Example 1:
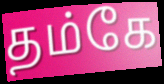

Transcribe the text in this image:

தம்கே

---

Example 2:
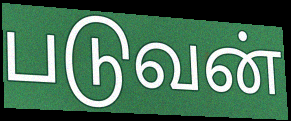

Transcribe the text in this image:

படுவன்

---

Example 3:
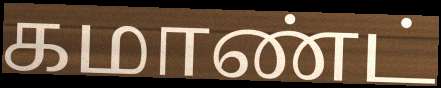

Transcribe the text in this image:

கமாண்ட்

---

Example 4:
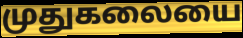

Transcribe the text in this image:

முதுகலையை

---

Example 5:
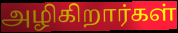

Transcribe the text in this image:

அழிகிறார்கள்